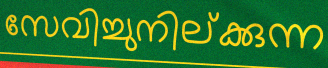
സേവിച്ചുനില്ക്കുന്ന